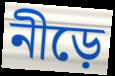
নীড়ে